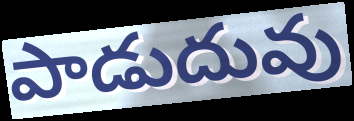
పాడుదువు